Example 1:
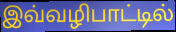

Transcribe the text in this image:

இவ்வழிபாட்டில்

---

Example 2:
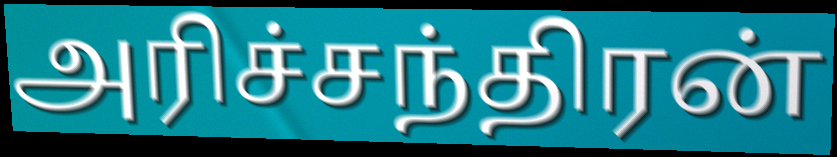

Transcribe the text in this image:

அரிச்சந்திரன்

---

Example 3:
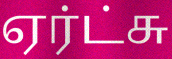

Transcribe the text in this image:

ஏர்ட்சு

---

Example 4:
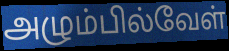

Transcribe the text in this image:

அழும்பில்வேள்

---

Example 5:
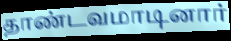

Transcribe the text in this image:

தாண்டவமாடினார்